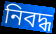
নিবদ্ধ